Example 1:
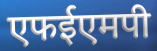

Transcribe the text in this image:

एफईएमपी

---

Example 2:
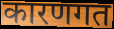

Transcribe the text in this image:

कारणगत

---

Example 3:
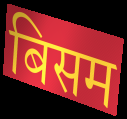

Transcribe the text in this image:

बिसम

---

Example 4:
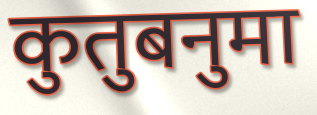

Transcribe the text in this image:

कुतुबनुमा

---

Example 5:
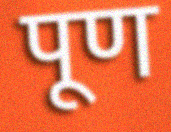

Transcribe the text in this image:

पूण